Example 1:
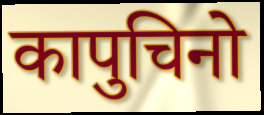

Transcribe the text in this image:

कापुचिनो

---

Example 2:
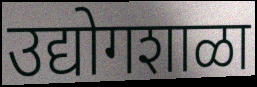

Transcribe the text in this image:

उद्योगशाळा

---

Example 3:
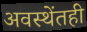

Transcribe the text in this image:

अवस्थेंतही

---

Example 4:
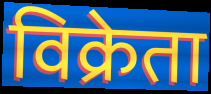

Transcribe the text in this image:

विक्रेता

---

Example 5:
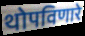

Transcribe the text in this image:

थोपविणारे